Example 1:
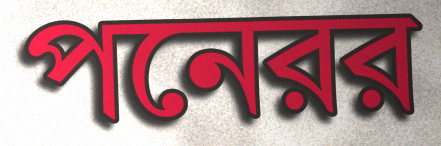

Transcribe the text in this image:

পনেরর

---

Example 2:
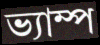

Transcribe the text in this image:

ভ্যাম্প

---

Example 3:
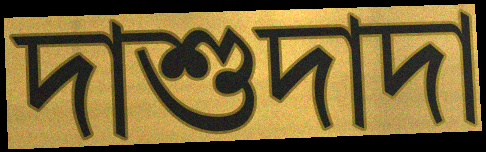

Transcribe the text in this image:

দাশুদাদা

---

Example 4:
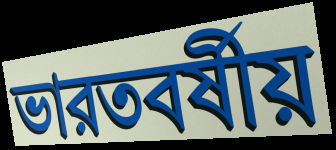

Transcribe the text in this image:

ভারতবর্ষীয়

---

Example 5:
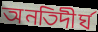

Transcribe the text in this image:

অনতিদীর্ঘ